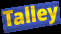
Talley